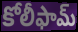
కోలీఫామ్